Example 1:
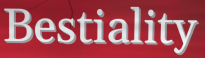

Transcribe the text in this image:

Bestiality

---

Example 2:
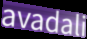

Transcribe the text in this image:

avadali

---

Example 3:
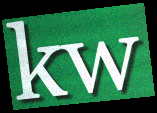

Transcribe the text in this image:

kw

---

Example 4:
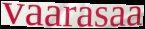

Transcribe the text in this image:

vaarasaa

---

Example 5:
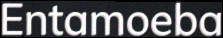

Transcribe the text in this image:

Entamoeba